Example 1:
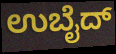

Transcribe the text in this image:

ಉಬೈದ್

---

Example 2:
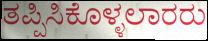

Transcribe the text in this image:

ತಪ್ಪಿಸಿಕೊಳ್ಳಲಾರರು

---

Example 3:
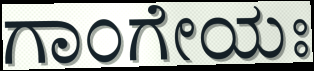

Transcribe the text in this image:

ಗಾಂಗೇಯಃ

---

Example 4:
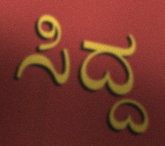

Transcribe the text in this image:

ಸಿದ್ದ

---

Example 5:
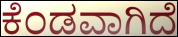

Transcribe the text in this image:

ಕೆಂಡವಾಗಿದೆ